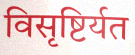
विसृष्टिर्यत